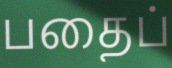
பதைப்